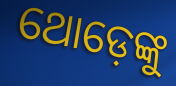
ଥୋଡ଼େଙ୍କୁ